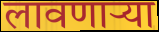
लावणाऱ्या